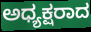
ಅಧ್ಯಕ್ಷರಾದ